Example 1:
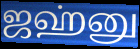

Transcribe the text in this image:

ஜஹ்னு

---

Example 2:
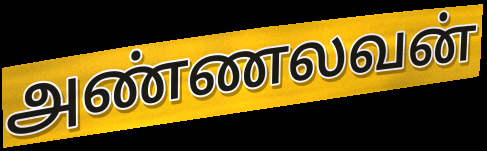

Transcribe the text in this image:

அண்ணலவன்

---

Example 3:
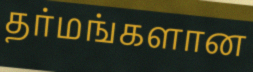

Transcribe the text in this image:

தர்மங்களான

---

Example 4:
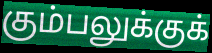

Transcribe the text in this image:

கும்பலுக்குக்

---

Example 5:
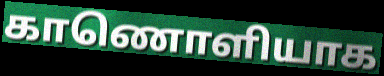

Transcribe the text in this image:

காணொளியாக